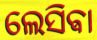
ଲେସିଵା